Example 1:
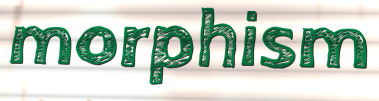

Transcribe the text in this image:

morphism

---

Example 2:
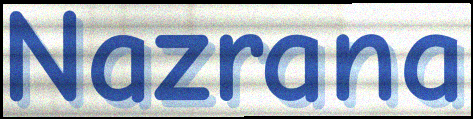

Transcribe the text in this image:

Nazrana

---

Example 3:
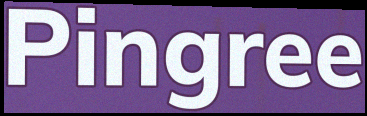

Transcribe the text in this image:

Pingree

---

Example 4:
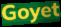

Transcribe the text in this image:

Goyet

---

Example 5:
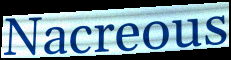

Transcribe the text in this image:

Nacreous